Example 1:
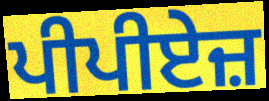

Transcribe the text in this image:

ਪੀਪੀਏਜ਼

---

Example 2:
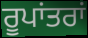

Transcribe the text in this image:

ਰੂਪਾਂਤਰਾਂ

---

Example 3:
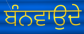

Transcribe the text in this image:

ਬੰਨਵਾਉਦੇ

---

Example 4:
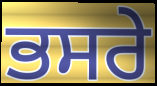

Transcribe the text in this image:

ਭਸਰੇ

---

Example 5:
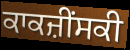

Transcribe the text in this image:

ਕਾਕਜ਼ੀੰਸਕੀ